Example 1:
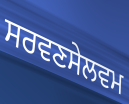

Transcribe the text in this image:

ਸਰਵਣਸੇਲਵਮ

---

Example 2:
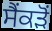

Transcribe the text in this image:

ਸੈਂਕੜੋਂ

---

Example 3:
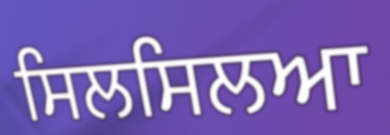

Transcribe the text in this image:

ਸਿਲਸਿਲਆ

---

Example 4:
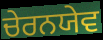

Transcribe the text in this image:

ਚੇਰਨਯੇਵ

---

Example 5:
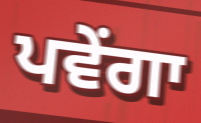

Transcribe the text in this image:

ਪਵੇਂਗਾ